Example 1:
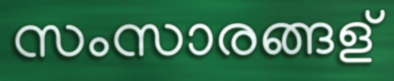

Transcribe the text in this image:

സംസാരങ്ങള്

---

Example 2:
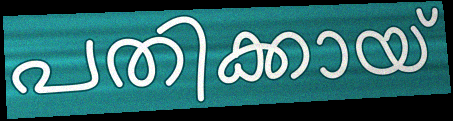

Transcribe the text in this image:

പതിക്കായ്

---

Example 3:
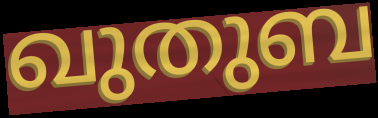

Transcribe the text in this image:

ഖുതുബ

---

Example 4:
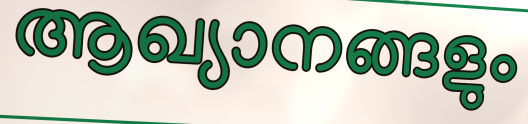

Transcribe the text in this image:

ആഖ്യാനങ്ങളും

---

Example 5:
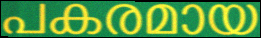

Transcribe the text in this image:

പകരമായ